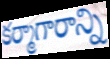
కర్మాగారాన్ని